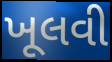
ખૂલવી